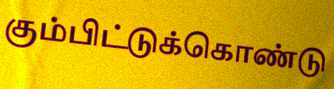
கும்பிட்டுக்கொண்டு